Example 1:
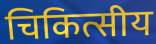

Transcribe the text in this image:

चिकित्सीय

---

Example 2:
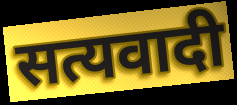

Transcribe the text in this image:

सत्यवादी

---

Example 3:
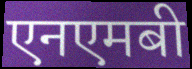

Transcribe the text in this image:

एनएमबी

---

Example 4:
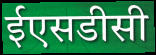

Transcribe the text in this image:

ईएसडीसी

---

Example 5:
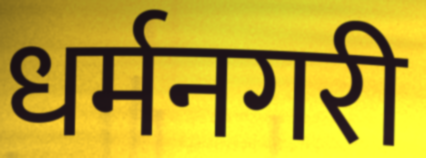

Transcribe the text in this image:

धर्मनगरी